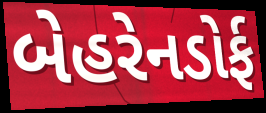
બેહરેનડોર્ફ